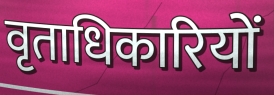
वृताधिकारियों